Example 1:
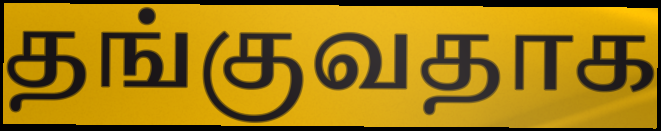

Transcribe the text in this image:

தங்குவதாக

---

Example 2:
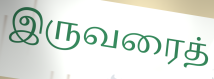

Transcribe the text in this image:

இருவரைத்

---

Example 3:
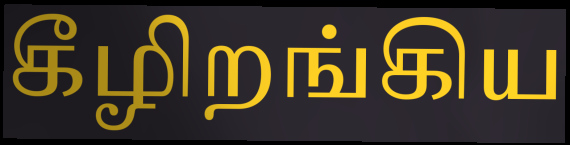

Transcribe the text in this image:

கீழிறங்கிய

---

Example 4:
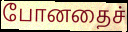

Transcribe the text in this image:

போனதைச்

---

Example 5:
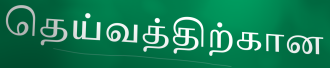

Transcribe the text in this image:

தெய்வத்திற்கான